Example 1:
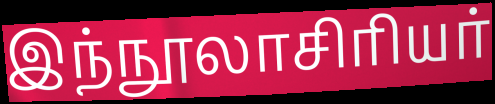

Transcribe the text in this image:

இந்நூலாசிரியர்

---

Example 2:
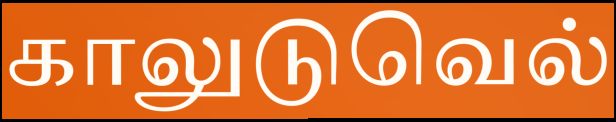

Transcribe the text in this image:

காலுடுவெல்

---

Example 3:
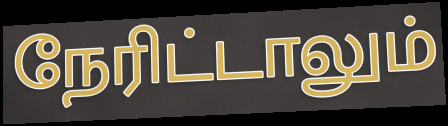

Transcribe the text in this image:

நேரிட்டாலும்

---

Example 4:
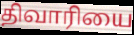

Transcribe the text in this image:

திவாரியை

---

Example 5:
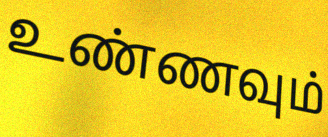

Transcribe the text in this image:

உண்ணவும்